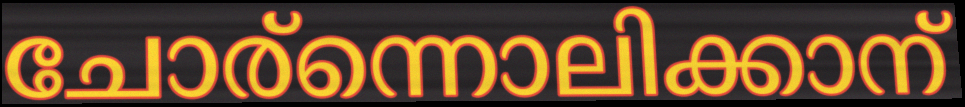
ചോര്ന്നൊലിക്കാന്